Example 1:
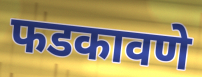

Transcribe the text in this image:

फडकावणे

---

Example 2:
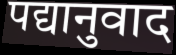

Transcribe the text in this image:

पद्यानुवाद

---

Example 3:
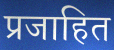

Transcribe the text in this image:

प्रजाहित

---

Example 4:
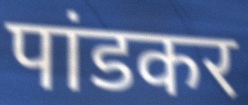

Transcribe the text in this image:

पांडकर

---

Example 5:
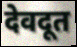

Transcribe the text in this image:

देवदूत